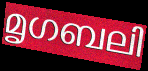
മൃഗബലി